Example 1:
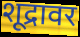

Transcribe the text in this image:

शूद्रावर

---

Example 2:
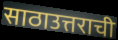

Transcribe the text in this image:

साठाउत्तराची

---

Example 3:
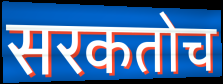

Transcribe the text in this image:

सरकतोच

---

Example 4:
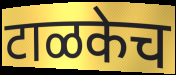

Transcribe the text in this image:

टाळकेच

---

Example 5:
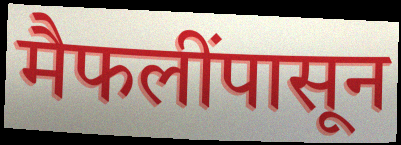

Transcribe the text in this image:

मैफलींपासून